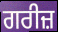
ਗਰੀਜ਼